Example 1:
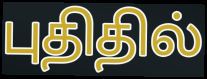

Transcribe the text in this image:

புதிதில்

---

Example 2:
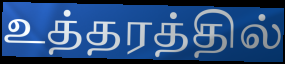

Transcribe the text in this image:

உத்தரத்தில்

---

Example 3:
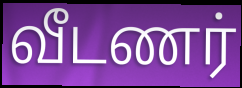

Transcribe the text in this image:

வீடணர்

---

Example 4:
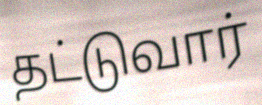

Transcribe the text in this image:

தட்டுவார்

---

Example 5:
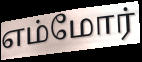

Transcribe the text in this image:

எம்மோர்